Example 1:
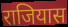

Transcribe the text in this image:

राजियास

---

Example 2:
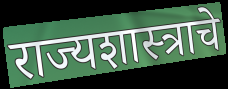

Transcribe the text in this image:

राज्यशास्त्राचे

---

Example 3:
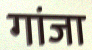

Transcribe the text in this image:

गांजा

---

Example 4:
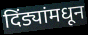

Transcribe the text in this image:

दिंड्यांमधून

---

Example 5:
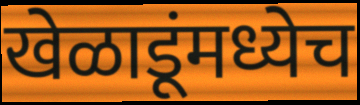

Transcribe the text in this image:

खेळाडूंमध्येच